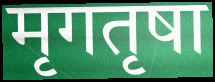
मृगतृषा